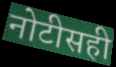
नोटीसही